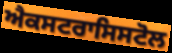
ਐਕਸਟਰਾਸਿਸਟੋਲ